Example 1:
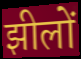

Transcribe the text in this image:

झीलों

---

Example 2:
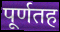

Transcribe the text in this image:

पूर्णतह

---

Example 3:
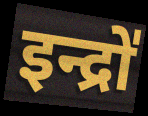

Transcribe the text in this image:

इन्द्रो॑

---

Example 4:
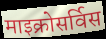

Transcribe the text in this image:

माइक्रोसर्विस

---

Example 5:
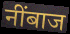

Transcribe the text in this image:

नींबाज